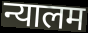
न्यालम